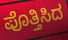
ಪೊತ್ತಿಸಿದ